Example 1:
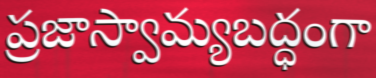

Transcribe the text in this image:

ప్రజాస్వామ్యబద్ధంగా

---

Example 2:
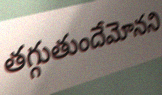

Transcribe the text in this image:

తగ్గుతుందేమోనని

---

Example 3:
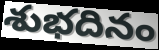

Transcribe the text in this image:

శుభదినం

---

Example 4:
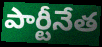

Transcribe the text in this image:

పార్టీనేత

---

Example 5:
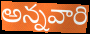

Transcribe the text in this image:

అన్నవారి